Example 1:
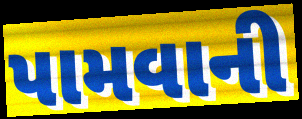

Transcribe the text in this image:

પામવાની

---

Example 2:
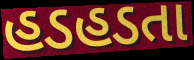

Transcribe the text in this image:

હડહડતા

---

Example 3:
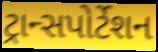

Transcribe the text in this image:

ટ્રાન્સપોર્ટેશન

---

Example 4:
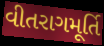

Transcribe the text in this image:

વીતરાગમૂર્તિ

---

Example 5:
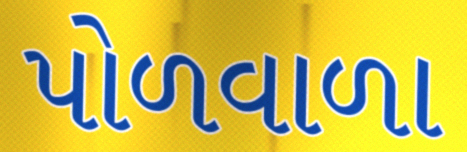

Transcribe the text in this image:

પોળવાળા